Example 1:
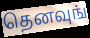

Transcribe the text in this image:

தெனவுங்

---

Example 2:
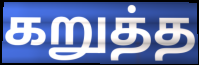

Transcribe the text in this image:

கறுத்த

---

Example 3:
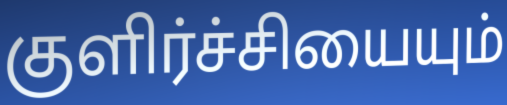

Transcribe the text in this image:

குளிர்ச்சியையும்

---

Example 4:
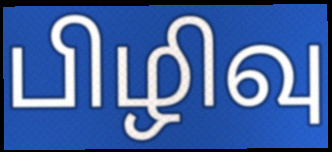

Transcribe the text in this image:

பிழிவு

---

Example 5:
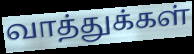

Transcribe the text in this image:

வாத்துக்கள்